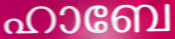
ഹാബേ